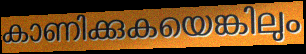
കാണിക്കുകയെങ്കിലും